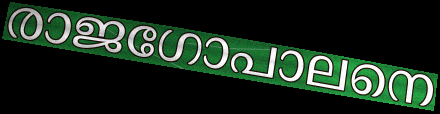
രാജഗോപാലനെ